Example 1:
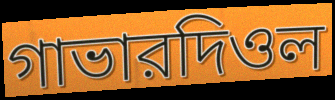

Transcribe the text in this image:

গাভারদিওল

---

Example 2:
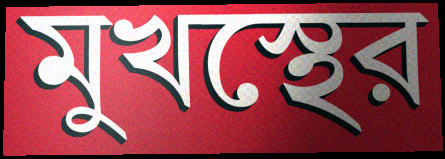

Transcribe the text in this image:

মুখস্থের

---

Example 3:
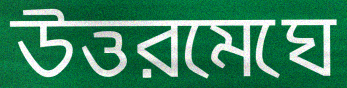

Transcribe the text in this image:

উত্তরমেঘে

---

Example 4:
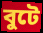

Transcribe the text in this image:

বুটে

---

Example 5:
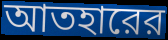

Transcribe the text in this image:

আতহারের